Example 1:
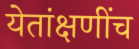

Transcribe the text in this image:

येतांक्षणींच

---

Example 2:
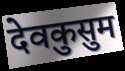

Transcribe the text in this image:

देवकुसुम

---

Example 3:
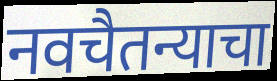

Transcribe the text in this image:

नवचैतन्याचा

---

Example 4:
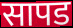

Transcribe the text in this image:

सापड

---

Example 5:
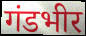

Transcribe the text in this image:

गंडभीर